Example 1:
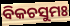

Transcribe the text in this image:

ବିକଚସୁମଃ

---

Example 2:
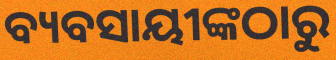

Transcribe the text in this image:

ବ୍ୟବସାୟୀଙ୍କଠାରୁ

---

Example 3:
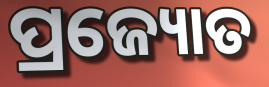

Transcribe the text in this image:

ପ୍ରଜ୍ୟୋତ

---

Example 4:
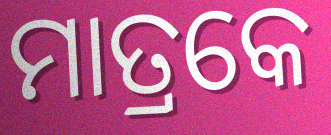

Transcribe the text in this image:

ମାତ୍ରକେ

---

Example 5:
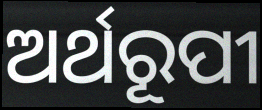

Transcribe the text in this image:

ଅର୍ଥରୂପୀ